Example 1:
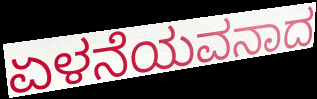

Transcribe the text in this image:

ಏಳನೆಯವನಾದ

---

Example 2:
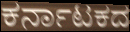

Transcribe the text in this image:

ಕರ್ನಾಟಕದ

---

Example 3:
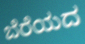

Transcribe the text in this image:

ಬೆರೆಯದ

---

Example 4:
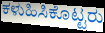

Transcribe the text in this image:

ಕಳುಹಿಸಿಕೊಟ್ಟರು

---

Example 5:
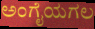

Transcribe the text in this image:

ಅಂಗೈಯಗಲ